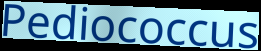
Pediococcus